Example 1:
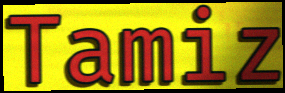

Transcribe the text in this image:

Tamiz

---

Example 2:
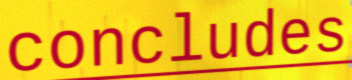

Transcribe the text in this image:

concludes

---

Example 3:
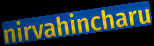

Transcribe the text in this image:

nirvahincharu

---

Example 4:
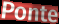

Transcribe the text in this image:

Ponte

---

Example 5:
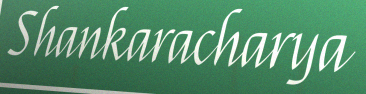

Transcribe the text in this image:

Shankaracharya